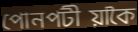
পোনপটীয়াকৈ